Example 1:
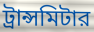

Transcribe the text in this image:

ট্রান্সমিটার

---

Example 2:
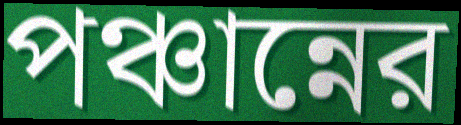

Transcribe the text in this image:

পঞ্চান্নের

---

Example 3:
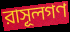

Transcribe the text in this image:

রাসূলগণ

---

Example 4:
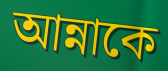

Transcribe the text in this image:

আন্নাকে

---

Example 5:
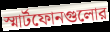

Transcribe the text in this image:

স্মার্টফোনগুলোর